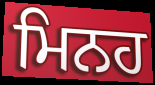
ਮਿਨਹ